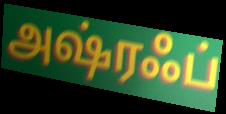
அஷ்ரஃப்